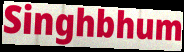
Singhbhum